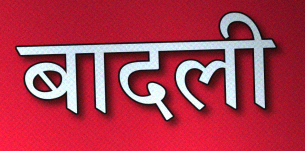
बादली